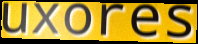
uxores